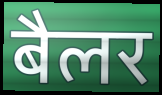
बैलर